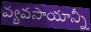
వ్యవసాయాన్నీ